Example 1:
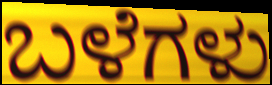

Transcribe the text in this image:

ಬಳೆಗಳು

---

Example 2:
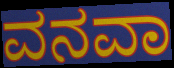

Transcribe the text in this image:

ವನವಾ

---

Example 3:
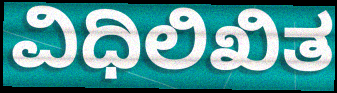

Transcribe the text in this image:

ವಿಧಿಲಿಖಿತ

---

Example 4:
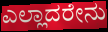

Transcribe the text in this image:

ಎಲ್ಲಾದರೇನು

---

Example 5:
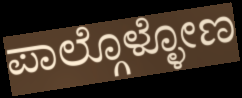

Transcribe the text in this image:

ಪಾಲ್ಗೊಳ್ಳೋಣ